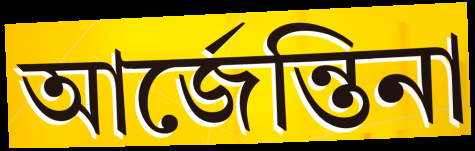
আর্জেন্তিনা